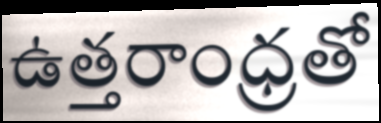
ఉత్తరాంధ్రతో